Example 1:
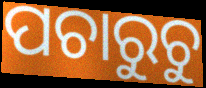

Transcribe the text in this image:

ପଚାରୁଚୁ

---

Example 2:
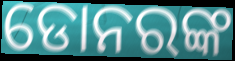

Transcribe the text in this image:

ଡୋନରଙ୍କ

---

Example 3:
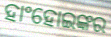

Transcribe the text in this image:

ହାଂହୋଇଙ୍କର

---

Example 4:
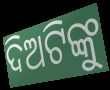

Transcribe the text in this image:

ଦିଅଟିଙ୍କୁ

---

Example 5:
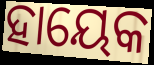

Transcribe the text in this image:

ହାୟେକ